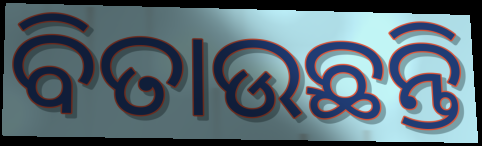
ବିତାଉଛନ୍ତି